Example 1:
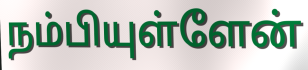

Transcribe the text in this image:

நம்பியுள்ளேன்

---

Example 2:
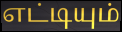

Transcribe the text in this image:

எட்டியும்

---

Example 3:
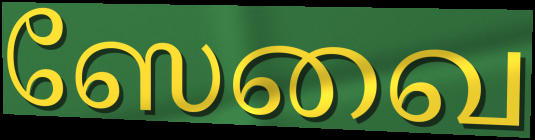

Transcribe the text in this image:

ஸேவை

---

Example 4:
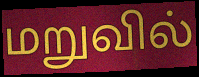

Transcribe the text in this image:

மறுவில்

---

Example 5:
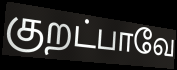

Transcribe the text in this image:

குறட்பாவே